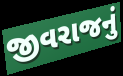
જીવરાજનું